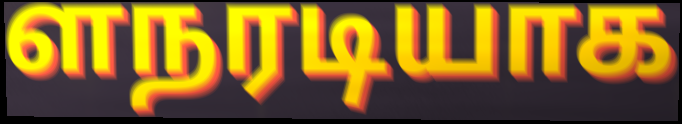
ளநரடியாக